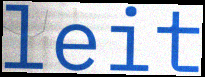
leit